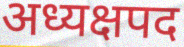
अध्यक्षपद